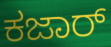
ಕಜಾರ್